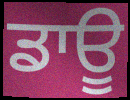
ਡਾਊ